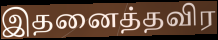
இதனைத்தவிர